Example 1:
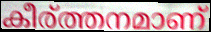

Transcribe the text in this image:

കീര്ത്തനമാണ്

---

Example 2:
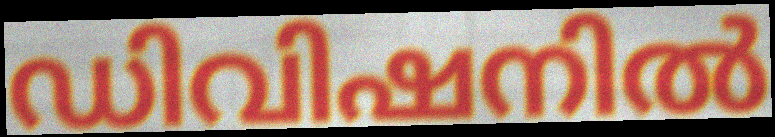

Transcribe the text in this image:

ഡിവിഷനിൽ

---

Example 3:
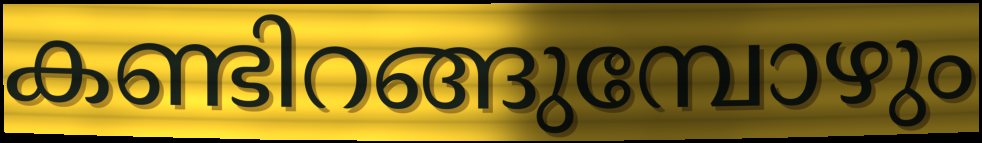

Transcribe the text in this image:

കണ്ടിറങ്ങുമ്പോഴും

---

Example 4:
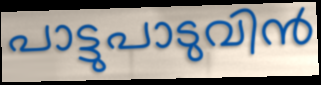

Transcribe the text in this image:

പാട്ടുപാടുവിൻ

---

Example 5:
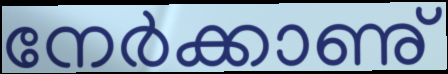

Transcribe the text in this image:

നേർക്കാണു്